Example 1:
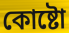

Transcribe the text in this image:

কোষ্টো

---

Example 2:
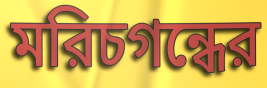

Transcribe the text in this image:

মরিচগন্ধের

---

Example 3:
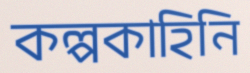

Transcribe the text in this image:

কল্পকাহিনি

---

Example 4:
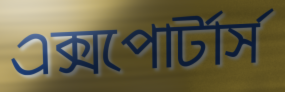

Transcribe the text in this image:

এক্সপোর্টার্স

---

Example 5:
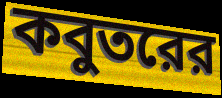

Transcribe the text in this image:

কবুতরের